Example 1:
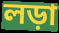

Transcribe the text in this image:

লড়া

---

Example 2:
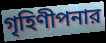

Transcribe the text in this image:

গৃহিণীপনার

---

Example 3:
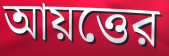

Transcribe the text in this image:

আয়ত্তের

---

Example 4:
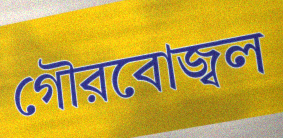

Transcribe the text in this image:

গৌরবোজ্বল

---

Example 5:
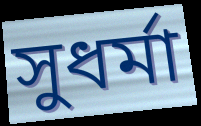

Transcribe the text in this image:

সুধর্মা